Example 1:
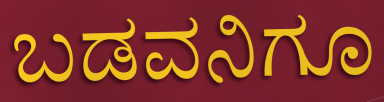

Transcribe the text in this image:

ಬಡವನಿಗೂ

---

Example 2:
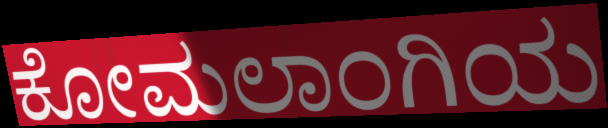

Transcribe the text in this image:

ಕೋಮಲಾಂಗಿಯ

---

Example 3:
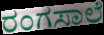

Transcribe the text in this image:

ರಂಗಸಾಲೆ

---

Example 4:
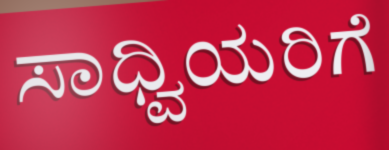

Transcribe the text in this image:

ಸಾಧ್ವಿಯರಿಗೆ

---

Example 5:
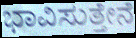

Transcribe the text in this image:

ಭಾವಿಸುತ್ತೇನೆ